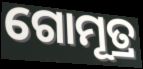
ଗୋମୂତ୍ର